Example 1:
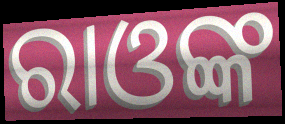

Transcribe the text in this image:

ରାଓଙ୍କ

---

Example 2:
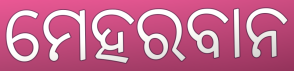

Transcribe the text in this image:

ମେହରବାନ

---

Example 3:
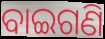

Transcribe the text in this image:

ବାଇଗଣି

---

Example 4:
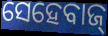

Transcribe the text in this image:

ସେହେବାଜ୍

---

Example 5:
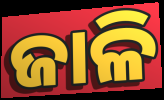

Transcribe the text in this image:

ଜାଳି